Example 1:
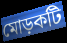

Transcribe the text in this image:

মোড়কটি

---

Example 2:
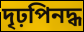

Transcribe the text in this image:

দৃঢ়পিনদ্ধ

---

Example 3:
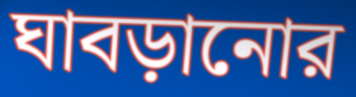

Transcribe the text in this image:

ঘাবড়ানোর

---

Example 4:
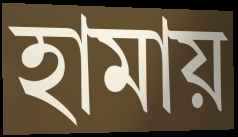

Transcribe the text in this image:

হামায়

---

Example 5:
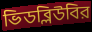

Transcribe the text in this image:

ভিডব্লিউবির